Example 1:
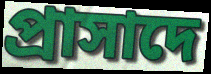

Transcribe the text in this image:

প্রাসাদে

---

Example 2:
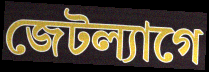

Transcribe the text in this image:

জেটল্যাগে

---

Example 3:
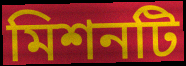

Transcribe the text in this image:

মিশনটি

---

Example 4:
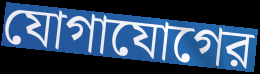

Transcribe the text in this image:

যোগাযোগের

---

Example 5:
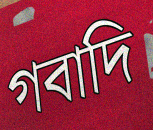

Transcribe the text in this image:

গবাদি